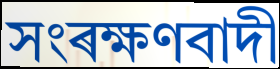
সংৰক্ষণবাদী